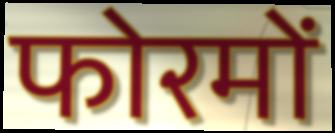
फोरमों